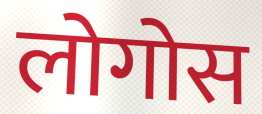
लोगोस